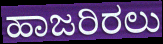
ಹಾಜರಿರಲು